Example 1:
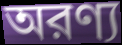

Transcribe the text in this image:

অরণ্য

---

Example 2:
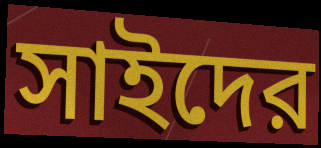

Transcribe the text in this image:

সাইদের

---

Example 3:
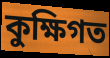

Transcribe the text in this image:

কুক্ষিগত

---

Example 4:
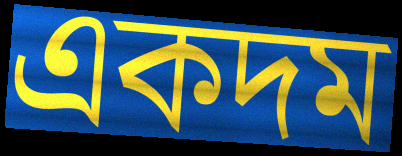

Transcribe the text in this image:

একদম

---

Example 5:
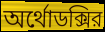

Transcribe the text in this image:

অর্থোডক্সির